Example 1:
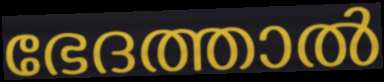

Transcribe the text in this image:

ഭേദത്താൽ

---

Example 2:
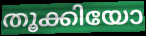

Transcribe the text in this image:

തൂക്കിയോ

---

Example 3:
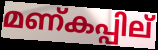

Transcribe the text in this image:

മണ്കപ്പില്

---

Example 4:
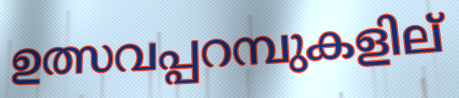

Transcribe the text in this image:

ഉത്സവപ്പറമ്പുകളില്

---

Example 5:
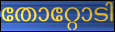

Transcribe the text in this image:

തോറ്റോടി